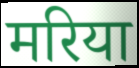
मरिया